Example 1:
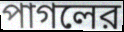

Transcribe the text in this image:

পাগলের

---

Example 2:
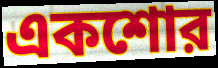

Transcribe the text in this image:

একশোর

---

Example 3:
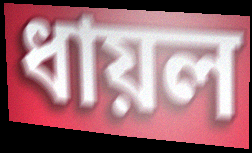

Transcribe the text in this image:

ধায়ল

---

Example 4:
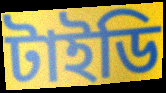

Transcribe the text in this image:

টাইডি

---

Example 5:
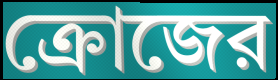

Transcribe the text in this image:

ক্রোজের